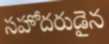
సహోదరుడైన